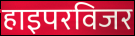
हाइपरविजर